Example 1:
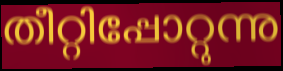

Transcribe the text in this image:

തീറ്റിപ്പോറ്റുന്നു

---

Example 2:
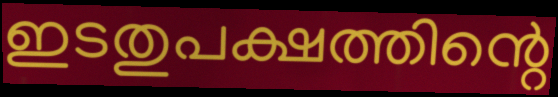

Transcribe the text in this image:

ഇടതുപക്ഷത്തിന്റെ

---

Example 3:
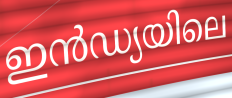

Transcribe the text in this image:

ഇൻഡ്യയിലെ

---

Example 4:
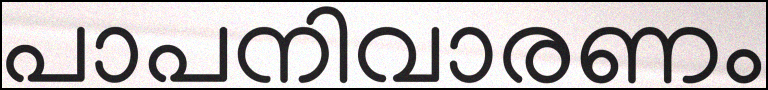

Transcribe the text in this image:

പാപനിവാരണം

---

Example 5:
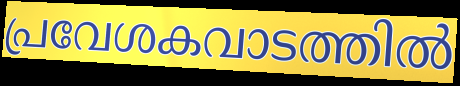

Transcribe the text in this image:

പ്രവേശകവാടത്തിൽ